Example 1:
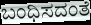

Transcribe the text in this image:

ಬಂಧಿಸದಂತೆ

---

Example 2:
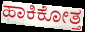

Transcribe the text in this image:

ಹಾಕಿಕೋತ್ತ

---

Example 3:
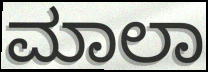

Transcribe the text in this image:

ಮಾಲಾ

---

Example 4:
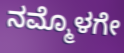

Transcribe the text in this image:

ನಮ್ಮೊಳಗೇ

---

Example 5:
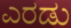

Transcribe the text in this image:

ಎರಡು